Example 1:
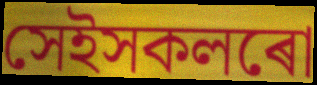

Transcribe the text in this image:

সেইসকলৰো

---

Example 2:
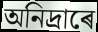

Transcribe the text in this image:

অনিদ্ৰাৰে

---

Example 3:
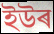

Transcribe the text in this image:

ইউৰ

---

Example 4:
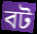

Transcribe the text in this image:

বট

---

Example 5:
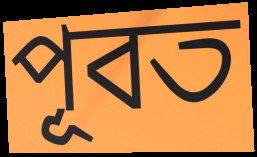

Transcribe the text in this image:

পূবত